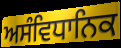
ਅਸੰਵਿਧਾਨਿਕ